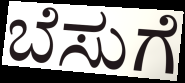
ಬೆಸುಗೆ